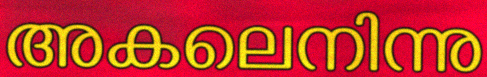
അകലെനിന്നു